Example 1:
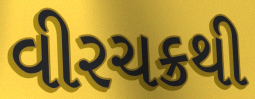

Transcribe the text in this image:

વીરચક્રથી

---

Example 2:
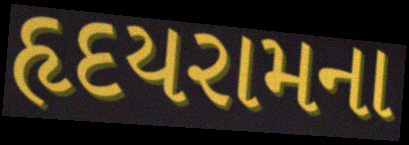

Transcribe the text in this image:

હૃદયરામના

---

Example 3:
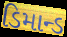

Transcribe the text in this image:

ડિમાન્ડ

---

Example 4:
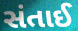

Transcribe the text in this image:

સંતાઈ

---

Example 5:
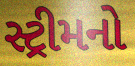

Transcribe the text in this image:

સ્ટ્રીમનો